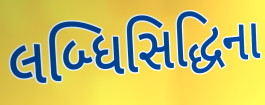
લબ્ધિસિદ્ધિના